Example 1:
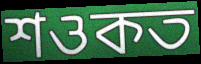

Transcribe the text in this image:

শওকত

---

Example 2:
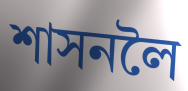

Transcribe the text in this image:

শাসনলৈ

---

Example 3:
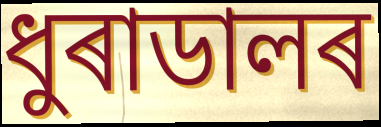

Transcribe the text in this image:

ধুৰাডালৰ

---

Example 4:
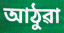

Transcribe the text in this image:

আঠুৱা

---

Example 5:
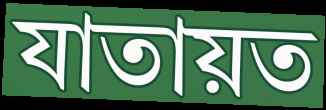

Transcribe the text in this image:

যাতায়ত